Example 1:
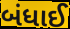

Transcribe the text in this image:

બંધાઈ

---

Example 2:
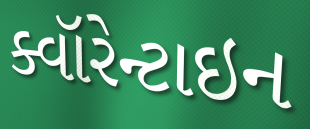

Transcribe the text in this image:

ક્વૉરેન્ટાઇન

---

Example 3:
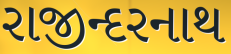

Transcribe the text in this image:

રાજીન્દરનાથ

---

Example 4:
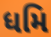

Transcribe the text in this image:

ધમિ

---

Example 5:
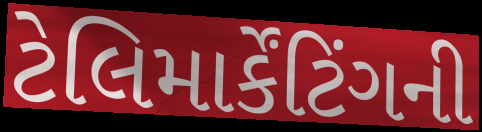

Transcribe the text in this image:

ટેલિમાર્કેંટિંગની